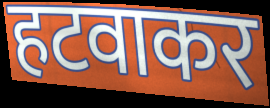
हटवाकर